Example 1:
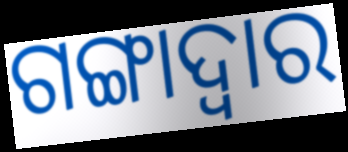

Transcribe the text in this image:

ଗଙ୍ଗାଦ୍ୱାର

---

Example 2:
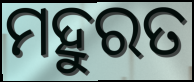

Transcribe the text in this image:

ମହୁରତ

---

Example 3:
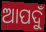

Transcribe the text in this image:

ଆପଦୁଁ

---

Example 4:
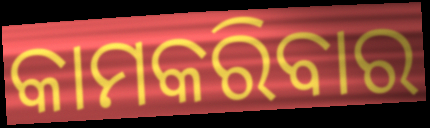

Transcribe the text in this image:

କାମକରିବାର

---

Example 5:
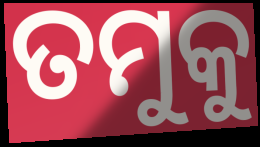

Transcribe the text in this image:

ତମୁକୁ